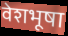
वेशभूषा